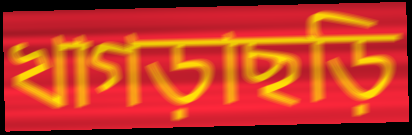
খাগড়াছড়ি